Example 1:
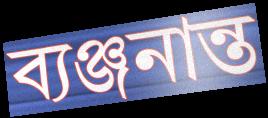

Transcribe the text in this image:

ব্যঞ্জনান্ত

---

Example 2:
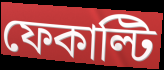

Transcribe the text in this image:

ফেকাল্টি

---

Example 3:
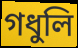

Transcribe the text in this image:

গধুলি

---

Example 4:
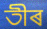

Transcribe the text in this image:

তীৰ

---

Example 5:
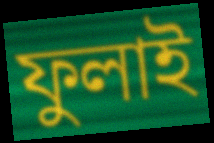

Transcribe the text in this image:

ফুলাই